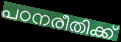
പഠനരീതിക്ക്